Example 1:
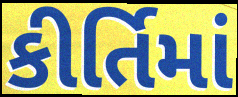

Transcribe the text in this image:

કીર્તિમાં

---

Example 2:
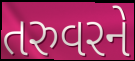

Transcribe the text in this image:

તરુવરને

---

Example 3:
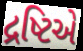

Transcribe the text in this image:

દ્રષ્ટિએ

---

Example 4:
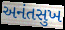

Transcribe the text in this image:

અનંતસુખ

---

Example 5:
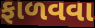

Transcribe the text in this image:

ફાળવવા